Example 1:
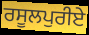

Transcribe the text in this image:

ਰਸੂਲਪੁਰੀਏ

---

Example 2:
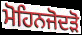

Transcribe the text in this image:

ਮੋਹਿਨਜੋਦੜੋ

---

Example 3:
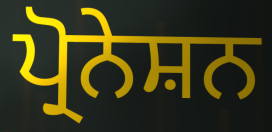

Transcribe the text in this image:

ਪ੍ਰੋਨੇਸ਼ਨ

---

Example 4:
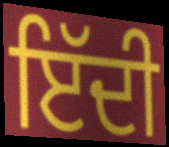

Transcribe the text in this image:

ਇੱਦੀ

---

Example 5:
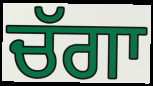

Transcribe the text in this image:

ਚੱਗਾ